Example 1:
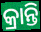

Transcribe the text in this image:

କ୍ରାନ୍ତି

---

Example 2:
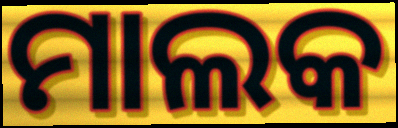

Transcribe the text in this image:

ମାଲକ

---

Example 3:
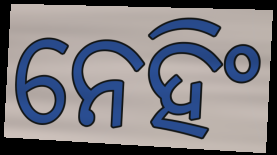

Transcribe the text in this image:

ନେହିଂ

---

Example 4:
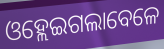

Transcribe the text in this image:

ଓହ୍ଲେଇଗଲାବେଳେ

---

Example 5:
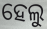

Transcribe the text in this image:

ହେଲୁ